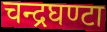
चन्द्रघण्टा